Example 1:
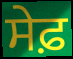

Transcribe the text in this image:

ਸੇਫ਼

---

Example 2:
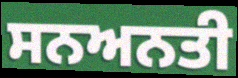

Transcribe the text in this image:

ਸਨਅਨਤੀ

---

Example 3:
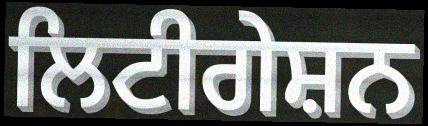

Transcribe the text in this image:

ਲਿਟੀਗੇਸ਼ਨ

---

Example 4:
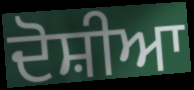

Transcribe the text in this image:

ਦੋਸ਼ੀਆ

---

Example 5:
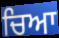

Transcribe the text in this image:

ਚਿਆ